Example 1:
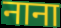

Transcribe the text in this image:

नाना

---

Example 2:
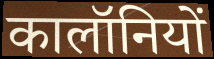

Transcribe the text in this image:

कालॉनियों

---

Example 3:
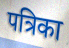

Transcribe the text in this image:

पत्रिका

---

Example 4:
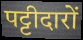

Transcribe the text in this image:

पट्टीदारों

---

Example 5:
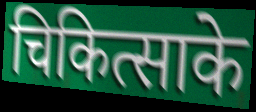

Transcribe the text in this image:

चिकित्साके